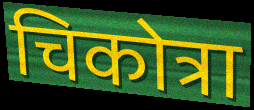
चिकोत्रा